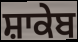
ਸ਼ਾਕੇਬ